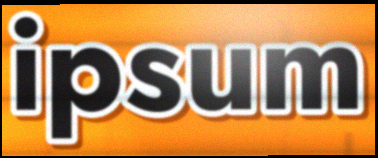
ipsum